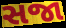
સજા